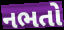
નભતો